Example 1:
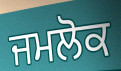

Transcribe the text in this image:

ਜਮਲੋਕ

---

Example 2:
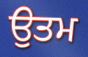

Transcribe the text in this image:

ਉਤਮ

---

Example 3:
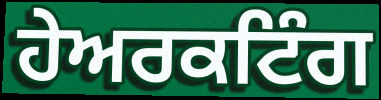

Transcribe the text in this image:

ਹੇਅਰਕਟਿੰਗ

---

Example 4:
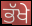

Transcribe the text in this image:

ਭੱਖੇ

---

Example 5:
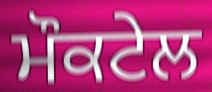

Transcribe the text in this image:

ਮੌਕਟੇਲ